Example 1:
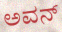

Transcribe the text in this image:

ಅವನ್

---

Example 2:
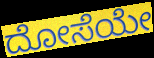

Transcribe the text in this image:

ದೋಸೆಯೇ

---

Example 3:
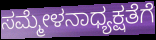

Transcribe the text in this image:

ಸಮ್ಮೇಳನಾಧ್ಯಕ್ಷತೆಗೆ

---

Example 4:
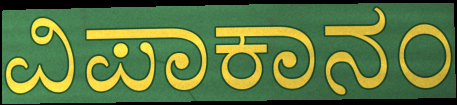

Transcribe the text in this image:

ವಿಪಾಕಾನಂ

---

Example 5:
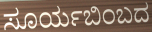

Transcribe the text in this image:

ಸೂರ್ಯಬಿಂಬದ